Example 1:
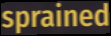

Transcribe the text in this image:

sprained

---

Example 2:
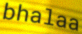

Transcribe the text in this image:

bhalaa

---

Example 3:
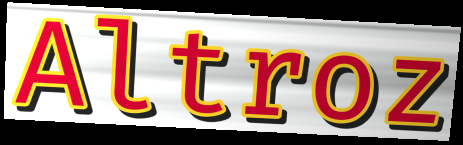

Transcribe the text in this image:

Altroz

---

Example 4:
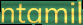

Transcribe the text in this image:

ntamil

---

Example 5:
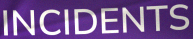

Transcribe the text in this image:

INCIDENTS